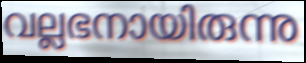
വല്ലഭനായിരുന്നു